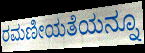
ರಮಣೀಯತೆಯನ್ನೂ